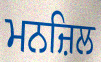
ਮਨਜ਼ਿਲ